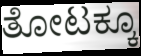
ತೋಟಕ್ಕೂ